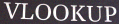
VLOOKUP